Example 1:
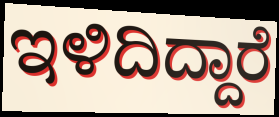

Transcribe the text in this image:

ಇಳಿದಿದ್ದಾರೆ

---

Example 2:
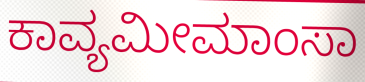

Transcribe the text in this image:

ಕಾವ್ಯಮೀಮಾಂಸಾ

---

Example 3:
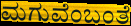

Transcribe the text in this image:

ಮಗುವೆಂಬಂತೆ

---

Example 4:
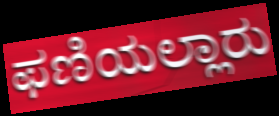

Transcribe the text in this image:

ಫಣಿಯಲ್ಲಾರು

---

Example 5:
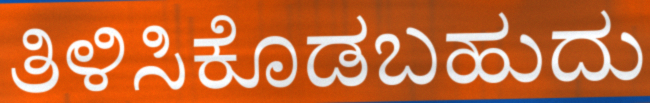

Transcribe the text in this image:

ತಿಳಿಸಿಕೊಡಬಹುದು